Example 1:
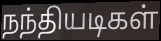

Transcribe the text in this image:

நந்தியடிகள்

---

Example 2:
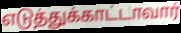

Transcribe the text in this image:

எடுத்துக்காட்டாவார்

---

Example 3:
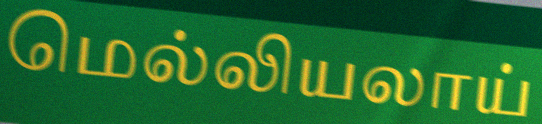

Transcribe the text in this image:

மெல்லியலாய்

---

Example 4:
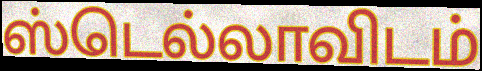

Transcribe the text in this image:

ஸ்டெல்லாவிடம்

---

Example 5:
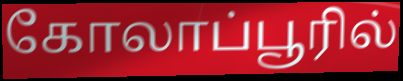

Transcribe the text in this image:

கோலாப்பூரில்